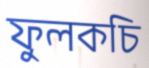
ফুলকচি